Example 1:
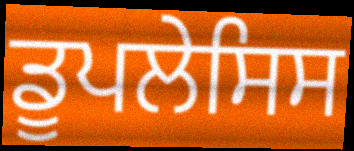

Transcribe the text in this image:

ਡੂਪਲੇਸਿਸ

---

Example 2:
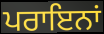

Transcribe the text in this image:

ਪਰਾਇਨਾਂ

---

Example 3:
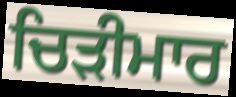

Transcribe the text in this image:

ਚਿੜੀਮਾਰ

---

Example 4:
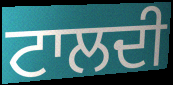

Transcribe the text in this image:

ਟਾਲਦੀ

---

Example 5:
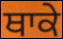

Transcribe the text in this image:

ਥਾਕੇ